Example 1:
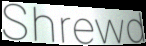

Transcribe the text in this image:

Shrewd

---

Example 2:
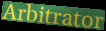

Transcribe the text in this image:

Arbitrator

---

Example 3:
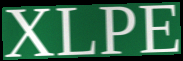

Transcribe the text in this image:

XLPE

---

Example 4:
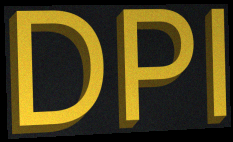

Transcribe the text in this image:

DPI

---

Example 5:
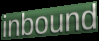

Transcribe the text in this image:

inbound